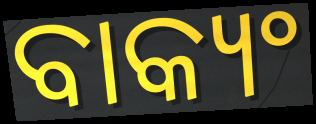
ବାକ୍ୟଂ